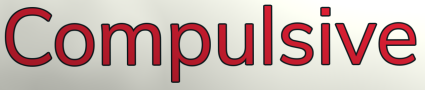
Compulsive